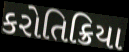
કરોતિક્રિયા